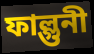
ফাল্গুনী